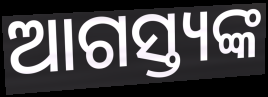
ଆଗସ୍ତ୍ୟଙ୍କ